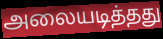
அலையடித்தது